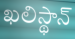
ఖలిస్థాన్